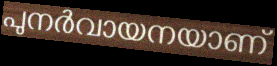
പുനർവായനയാണ്